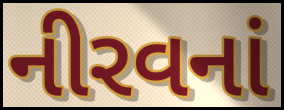
નીરવનાં